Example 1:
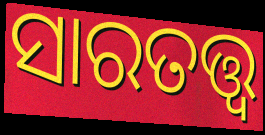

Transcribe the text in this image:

ସାରତତ୍ତ୍ୱ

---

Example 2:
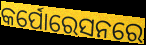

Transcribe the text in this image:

କର୍ପୋରେସନରେ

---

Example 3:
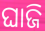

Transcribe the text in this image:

ଘାଜି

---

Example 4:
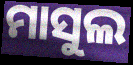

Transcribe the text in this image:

ମାସୁଲ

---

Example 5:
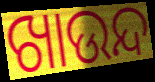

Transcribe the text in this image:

ଖାଉନ୍ଦ